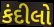
કંદીલો